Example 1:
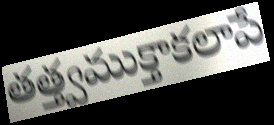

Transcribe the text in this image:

తత్త్వముక్తాకలాపే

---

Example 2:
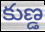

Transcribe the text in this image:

కుణ్డ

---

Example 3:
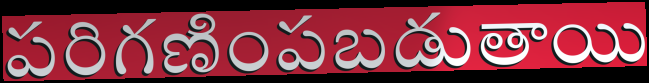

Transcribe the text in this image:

పరిగణింపబడుతాయి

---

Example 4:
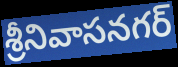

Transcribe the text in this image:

శ్రీనివాసనగర్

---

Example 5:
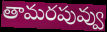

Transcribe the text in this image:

తామరపువ్వు